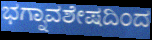
ಭಗ್ನಾವಶೇಷದಿಂದ